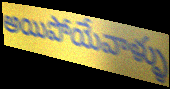
అయిపోయేవాళ్ళు